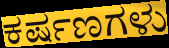
ಕರ್ಷಣಗಳು